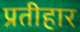
प्रतीहार